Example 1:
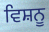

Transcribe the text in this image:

ਵਿਸ਼ਨੂ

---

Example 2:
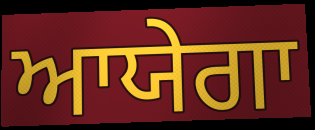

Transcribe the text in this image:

ਆਯੇਗਾ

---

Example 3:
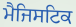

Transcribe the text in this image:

ਮੈਜਿਸਟਿਕ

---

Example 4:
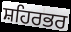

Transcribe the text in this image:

ਸ਼ਹਿਰਭਰ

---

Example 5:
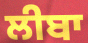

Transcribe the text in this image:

ਲੀਬਾ